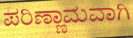
ಪರಿಣ್ಣಾಮವಾಗಿ